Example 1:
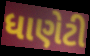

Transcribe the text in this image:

ધાણેટી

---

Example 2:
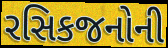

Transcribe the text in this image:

રસિકજનોની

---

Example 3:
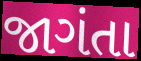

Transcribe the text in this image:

જાગંતા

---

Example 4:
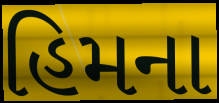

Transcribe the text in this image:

હિમના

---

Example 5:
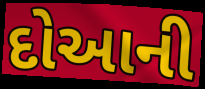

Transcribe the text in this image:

દોઆની